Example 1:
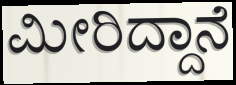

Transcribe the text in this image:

ಮೀರಿದ್ದಾನೆ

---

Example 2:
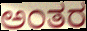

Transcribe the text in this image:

ಅಂತರ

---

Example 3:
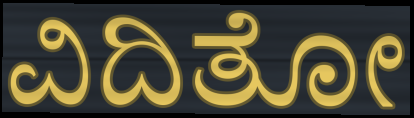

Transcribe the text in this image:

ವಿದಿತೋ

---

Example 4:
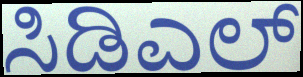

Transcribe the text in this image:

ಸಿಡಿಎಲ್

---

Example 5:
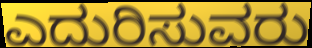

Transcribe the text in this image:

ಎದುರಿಸುವರು